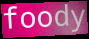
foody